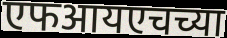
एफआयएचच्या